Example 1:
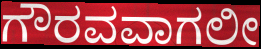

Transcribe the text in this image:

ಗೌರವವಾಗಲೀ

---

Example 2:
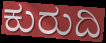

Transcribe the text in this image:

ಕುರುದಿ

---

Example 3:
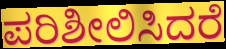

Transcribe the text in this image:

ಪರಿಶೀಲಿಸಿದರೆ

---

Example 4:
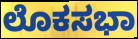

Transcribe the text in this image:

ಲೊಕಸಭಾ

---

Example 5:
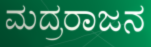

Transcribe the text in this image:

ಮದ್ರರಾಜನ